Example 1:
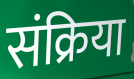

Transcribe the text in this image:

संक्रिया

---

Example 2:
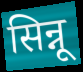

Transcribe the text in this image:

सिन्नू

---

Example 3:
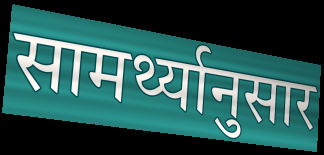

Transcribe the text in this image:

सामर्थ्यानुसार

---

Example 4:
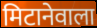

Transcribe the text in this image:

मिटानेवाला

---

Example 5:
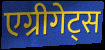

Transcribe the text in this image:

एग्रीगेट्स